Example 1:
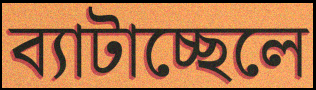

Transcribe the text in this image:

ব্যাটাচ্ছেলে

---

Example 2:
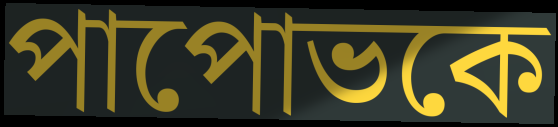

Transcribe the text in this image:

পাপোভকে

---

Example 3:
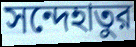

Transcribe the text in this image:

সন্দেহাতুর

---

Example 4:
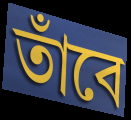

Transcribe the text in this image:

তাঁবে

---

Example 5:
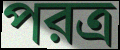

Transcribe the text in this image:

পরত্র